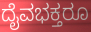
ದೈವಭಕ್ತರೂ